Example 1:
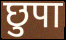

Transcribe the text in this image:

छुपा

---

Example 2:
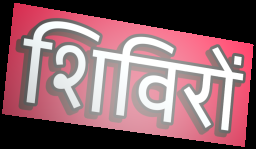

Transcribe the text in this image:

शिविरों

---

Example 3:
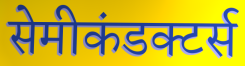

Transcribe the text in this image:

सेमीकंडक्टर्स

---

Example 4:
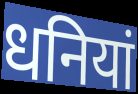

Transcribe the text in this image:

धनियां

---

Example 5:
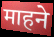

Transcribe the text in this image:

माहने